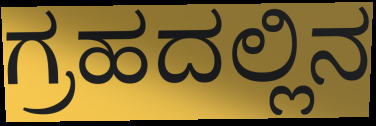
ಗ್ರಹದಲ್ಲಿನ